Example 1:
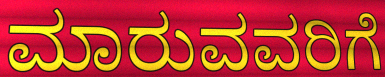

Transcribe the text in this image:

ಮಾರುವವರಿಗೆ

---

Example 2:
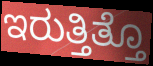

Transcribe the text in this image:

ಇರುತ್ತಿತ್ತೊ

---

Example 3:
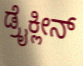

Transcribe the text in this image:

ಡ್ರೈಕ್ಲೀನ್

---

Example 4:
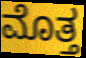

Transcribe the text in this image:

ಮೊತ್ತ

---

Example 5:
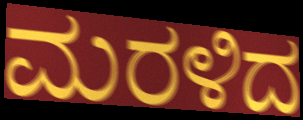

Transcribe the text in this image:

ಮರಳಿದ